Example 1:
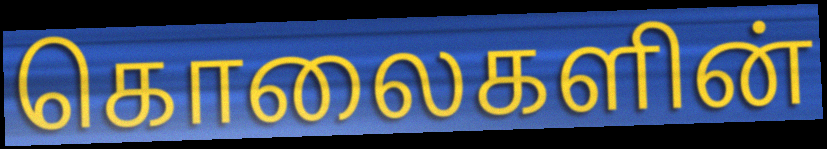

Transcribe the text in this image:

கொலைகளின்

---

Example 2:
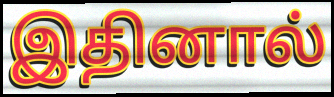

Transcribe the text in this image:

இதினால்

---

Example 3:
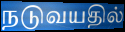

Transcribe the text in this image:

நடுவயதில்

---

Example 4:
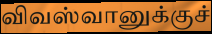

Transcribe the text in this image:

விவஸ்வானுக்குச்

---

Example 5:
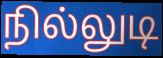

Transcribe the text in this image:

நில்லுடி